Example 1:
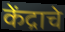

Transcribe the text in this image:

केंद्राचे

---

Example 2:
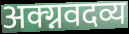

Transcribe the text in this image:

अक्ग्नवदव्य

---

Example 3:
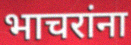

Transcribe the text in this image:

भाचरांना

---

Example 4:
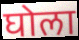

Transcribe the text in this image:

घोला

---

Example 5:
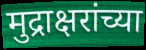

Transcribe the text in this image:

मुद्राक्षरांच्या